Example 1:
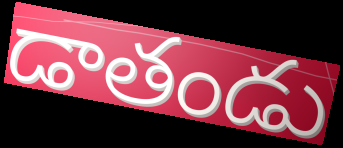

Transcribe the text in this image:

డాతండు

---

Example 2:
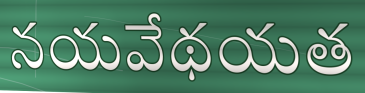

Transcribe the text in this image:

నయవేథయత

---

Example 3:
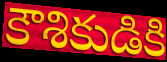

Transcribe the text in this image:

కౌశికుడికి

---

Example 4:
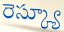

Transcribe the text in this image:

రెస్క్యూ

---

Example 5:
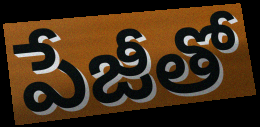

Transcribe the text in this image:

పేజీతో